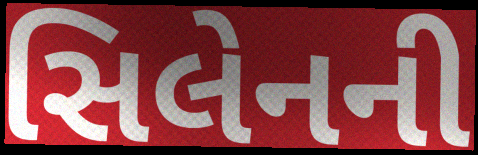
સિલેનની